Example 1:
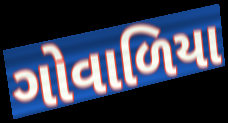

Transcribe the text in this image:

ગોવાળિયા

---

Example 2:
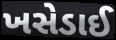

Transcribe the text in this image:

ખસેડાઈ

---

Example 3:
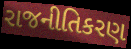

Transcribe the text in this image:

રાજનીતિકરણ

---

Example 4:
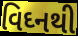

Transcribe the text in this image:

વિઘ્નથી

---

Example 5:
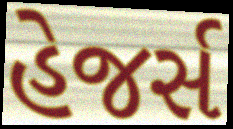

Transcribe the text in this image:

હેજર્સ